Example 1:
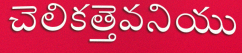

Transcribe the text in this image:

చెలికత్తెవనియు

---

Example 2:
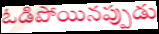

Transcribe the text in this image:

ఓడిపోయినప్పుడు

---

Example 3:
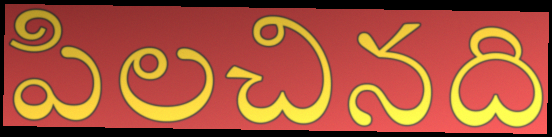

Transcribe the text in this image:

పిలచినది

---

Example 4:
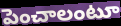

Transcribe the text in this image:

పెంచాలంటూ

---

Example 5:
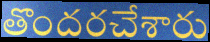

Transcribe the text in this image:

తొందరచేశారు